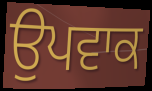
ਉਪਵਾਕ